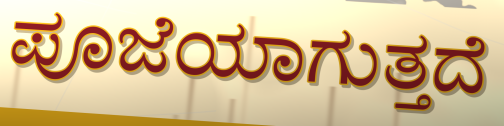
ಪೂಜೆಯಾಗುತ್ತದೆ